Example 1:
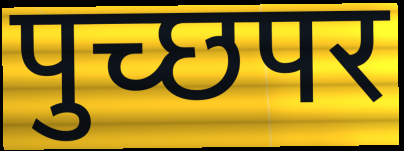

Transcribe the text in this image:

पुच्छपर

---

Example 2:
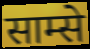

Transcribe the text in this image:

साम्से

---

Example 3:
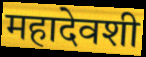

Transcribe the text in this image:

महादेवशी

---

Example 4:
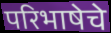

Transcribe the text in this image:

परिभाषेचे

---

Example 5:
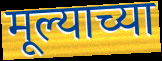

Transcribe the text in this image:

मूल्याच्या